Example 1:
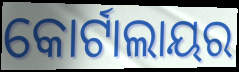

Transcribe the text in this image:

କୋର୍ଟାଲାୟର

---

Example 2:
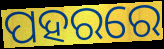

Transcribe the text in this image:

ପହରରେ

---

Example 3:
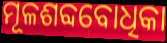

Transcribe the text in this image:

ମୂଳଶବ୍ଦବୋଧିକା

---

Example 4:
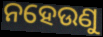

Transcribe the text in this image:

ନହେଉଣୁ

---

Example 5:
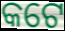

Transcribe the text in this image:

କଟେ